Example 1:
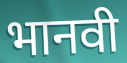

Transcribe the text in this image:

भानवी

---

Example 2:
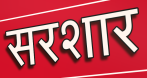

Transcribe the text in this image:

सरशार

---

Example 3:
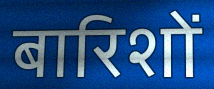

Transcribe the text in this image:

बारिशों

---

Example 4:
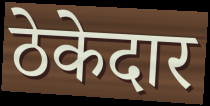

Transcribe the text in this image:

ठेकेदार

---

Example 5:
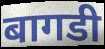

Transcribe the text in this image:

बागडी